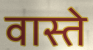
वास्ते